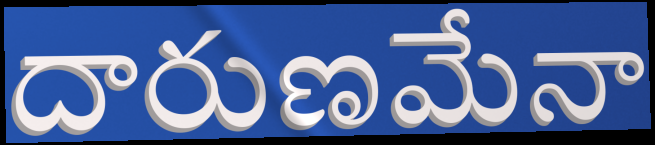
దారుణమేనా